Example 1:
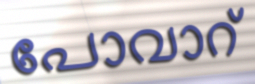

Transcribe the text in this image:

പോവാറ്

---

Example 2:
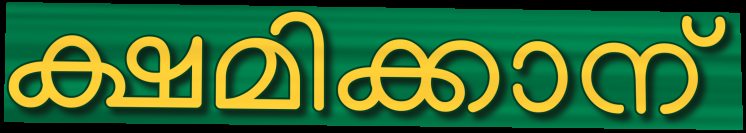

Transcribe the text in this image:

ക്ഷമിക്കാന്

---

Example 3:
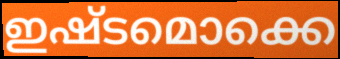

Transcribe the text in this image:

ഇഷ്ടമൊക്കെ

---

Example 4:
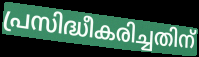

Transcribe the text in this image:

പ്രസിദ്ധീകരിച്ചതിന്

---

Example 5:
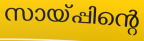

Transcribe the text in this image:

സായ്പ്പിന്റെ